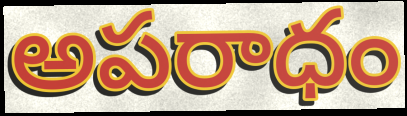
అపరాధం